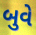
બુવે